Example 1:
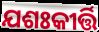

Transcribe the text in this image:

ଯଶଃକୀର୍ତ୍ତି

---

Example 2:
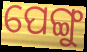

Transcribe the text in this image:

ପେଙ୍ଗୁ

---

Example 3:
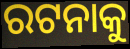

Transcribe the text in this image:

ରଟନାକୁ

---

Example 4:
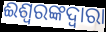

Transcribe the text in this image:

ଈଶ୍ୱରଙ୍କଦ୍ୱାରା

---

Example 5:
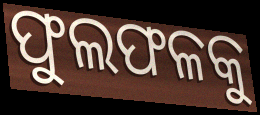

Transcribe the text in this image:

ଫୁଲଫଳକୁ